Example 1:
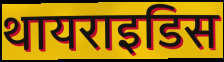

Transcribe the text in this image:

थायराइडिस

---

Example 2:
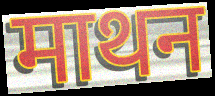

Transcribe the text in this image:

माथन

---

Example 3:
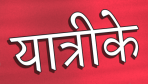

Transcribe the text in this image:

यात्रीके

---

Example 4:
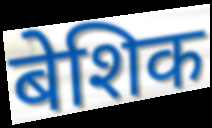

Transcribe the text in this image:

बेशिक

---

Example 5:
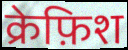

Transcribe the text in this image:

क्रेफ़िश